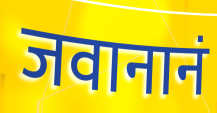
जवानानं